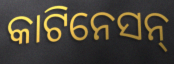
କାଟିନେସନ୍